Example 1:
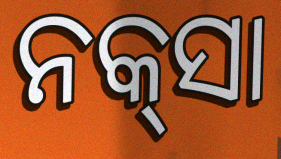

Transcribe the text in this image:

ନକ୍‍ସା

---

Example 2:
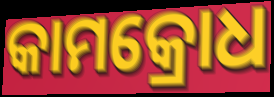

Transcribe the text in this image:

କାମକ୍ରୋଧ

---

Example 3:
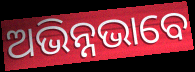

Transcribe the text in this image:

ଅଭିନ୍ନଭାବେ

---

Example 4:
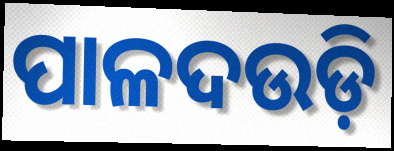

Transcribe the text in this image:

ପାଳଦଉଡ଼ି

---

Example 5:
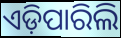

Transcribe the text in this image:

ଏଡ଼ିପାରିଲି